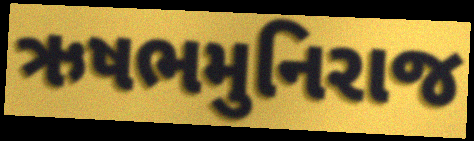
ઋષભમુનિરાજ